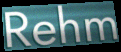
Rehm